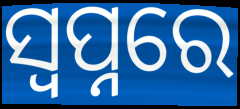
ସ୍ୱପ୍ନରେ